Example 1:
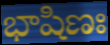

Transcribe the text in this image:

భాషిణః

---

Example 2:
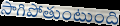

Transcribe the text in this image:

సాగిపోతుంటుంది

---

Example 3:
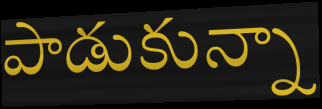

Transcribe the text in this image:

పాడుకున్నా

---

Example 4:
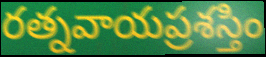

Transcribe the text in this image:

రత్నవాయప్రశస్తిం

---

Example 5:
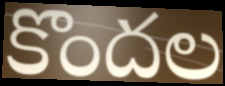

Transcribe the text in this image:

కొందల